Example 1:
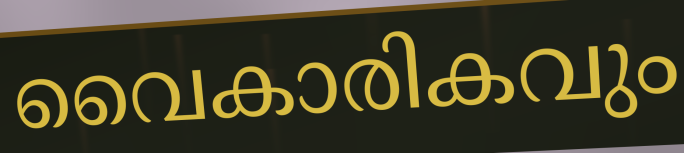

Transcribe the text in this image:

വൈകാരികവും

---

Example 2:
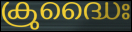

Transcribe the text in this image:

ക്രുദ്ധൈഃ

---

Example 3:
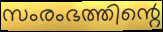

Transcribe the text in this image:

സംരംഭത്തിന്റെ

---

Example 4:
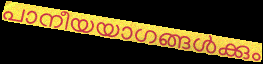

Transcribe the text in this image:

പാനീയയാഗങ്ങൾക്കും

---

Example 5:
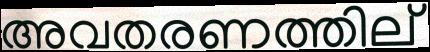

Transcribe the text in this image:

അവതരണത്തില്